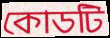
কোডটি